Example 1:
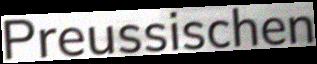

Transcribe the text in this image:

Preussischen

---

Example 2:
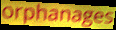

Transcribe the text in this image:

orphanages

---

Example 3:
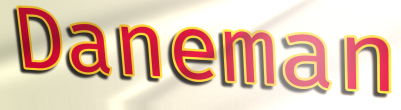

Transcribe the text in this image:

Daneman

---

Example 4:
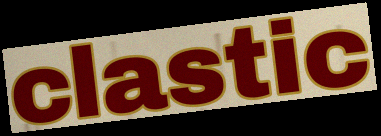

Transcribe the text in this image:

clastic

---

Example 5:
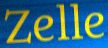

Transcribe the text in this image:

Zelle